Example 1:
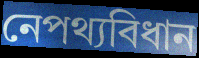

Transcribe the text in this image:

নেপথ্যবিধান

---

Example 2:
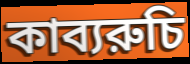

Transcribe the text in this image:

কাব্যরুচি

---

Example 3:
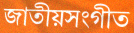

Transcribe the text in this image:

জাতীয়সংগীত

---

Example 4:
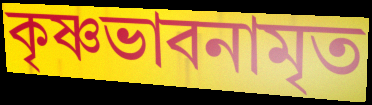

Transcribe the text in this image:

কৃষ্ণভাবনামৃত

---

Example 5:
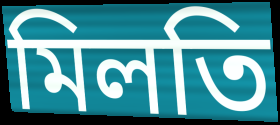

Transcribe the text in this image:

মিলতি